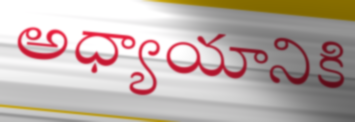
అధ్యాయానికి